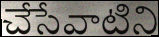
చేసేవాటిని